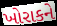
ખોરાકને